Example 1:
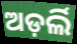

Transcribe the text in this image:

ଅଡ଼ର୍ଲି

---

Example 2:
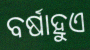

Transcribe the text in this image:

ବର୍ଷାହୁଏ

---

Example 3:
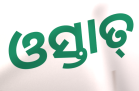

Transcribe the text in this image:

ଓସ୍ତାତ୍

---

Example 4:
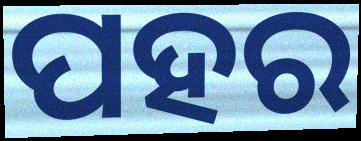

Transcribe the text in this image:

ପହର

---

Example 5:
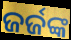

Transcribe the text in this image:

ଜର୍ଜଙ୍କ